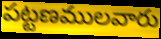
పట్టణములవారు